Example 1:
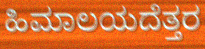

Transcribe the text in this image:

ಹಿಮಾಲಯದೆತ್ತರ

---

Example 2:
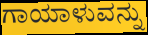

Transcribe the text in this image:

ಗಾಯಾಳುವನ್ನು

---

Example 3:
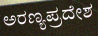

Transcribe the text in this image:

ಅರಣ್ಯಪ್ರದೇಶ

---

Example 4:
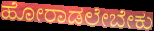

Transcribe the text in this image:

ಹೋರಾಡಲೇಬೇಕು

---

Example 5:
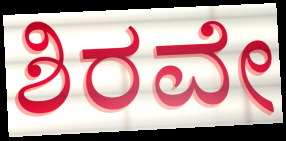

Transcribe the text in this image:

ಶಿರವೇ